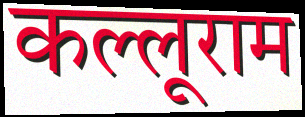
कल्लूराम